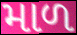
માળ